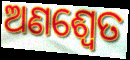
ଅଣଶ୍ୱେତ